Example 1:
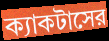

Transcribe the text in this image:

ক্যাকটাসের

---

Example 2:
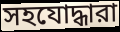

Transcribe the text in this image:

সহযোদ্ধারা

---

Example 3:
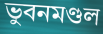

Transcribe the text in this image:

ভুবনমণ্ডল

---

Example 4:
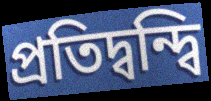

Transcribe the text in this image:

প্রতিদ্বন্দ্বি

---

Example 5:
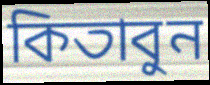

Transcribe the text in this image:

কিতাবুন